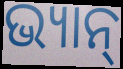
ଭ୍ୟାନ୍